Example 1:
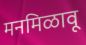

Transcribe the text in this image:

मनमिळावू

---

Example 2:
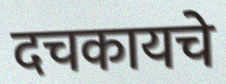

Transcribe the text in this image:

दचकायचे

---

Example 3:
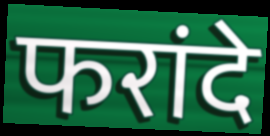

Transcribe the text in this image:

फरांदे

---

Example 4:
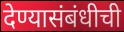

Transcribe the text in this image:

देण्यासंबंधीची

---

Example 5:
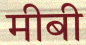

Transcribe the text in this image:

मीबी